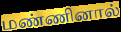
மண்ணினால்